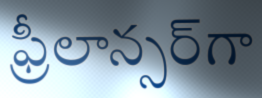
ఫ్రీలాన్సర్‌గా